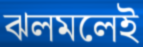
ঝলমলেই